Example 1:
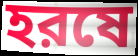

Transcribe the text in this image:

হরষে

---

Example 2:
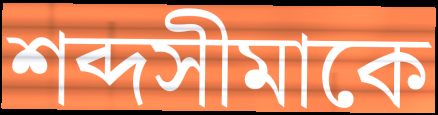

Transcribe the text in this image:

শব্দসীমাকে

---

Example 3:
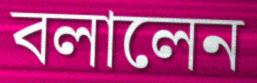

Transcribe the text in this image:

বলালেন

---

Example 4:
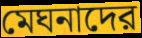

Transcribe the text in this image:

মেঘনাদের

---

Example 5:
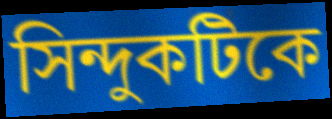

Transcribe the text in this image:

সিন্দুকটিকে